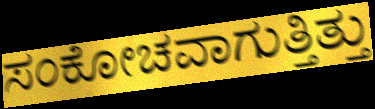
ಸಂಕೋಚವಾಗುತ್ತಿತ್ತು